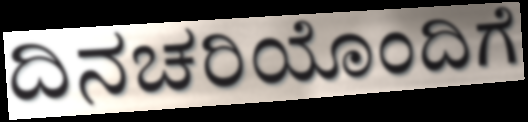
ದಿನಚರಿಯೊಂದಿಗೆ